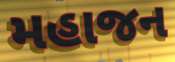
મહાજન